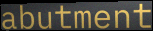
abutment